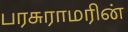
பரசுராமரின்